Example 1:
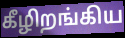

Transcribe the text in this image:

கீழிறங்கிய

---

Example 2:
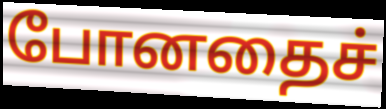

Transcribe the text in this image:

போனதைச்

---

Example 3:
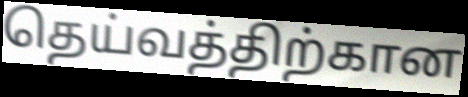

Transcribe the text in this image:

தெய்வத்திற்கான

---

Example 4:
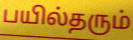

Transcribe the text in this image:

பயில்தரும்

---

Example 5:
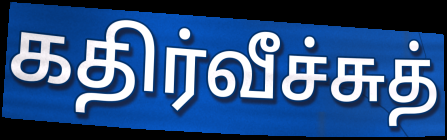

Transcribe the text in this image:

கதிர்வீச்சுத்